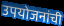
उपयोजनांची